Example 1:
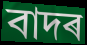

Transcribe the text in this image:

বাদৰ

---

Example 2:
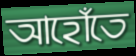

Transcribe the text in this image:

আহোঁতে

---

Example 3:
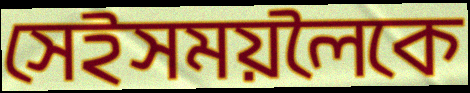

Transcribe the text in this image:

সেইসময়লৈকে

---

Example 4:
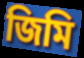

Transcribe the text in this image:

জিমি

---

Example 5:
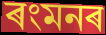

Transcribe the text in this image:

ৰংমনৰ